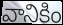
వానికిం